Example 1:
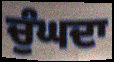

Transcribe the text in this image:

ਚੁੰਘਦਾ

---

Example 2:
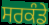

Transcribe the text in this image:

ਸਰਕੰਡੇ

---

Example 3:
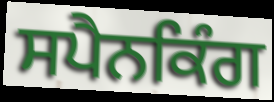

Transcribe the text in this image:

ਸਪੈਨਕਿੰਗ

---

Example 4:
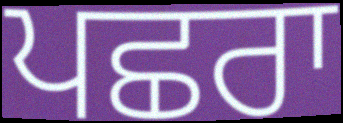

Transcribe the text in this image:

ਪਛਰਾ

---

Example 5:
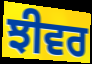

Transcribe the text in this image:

ਝੀਵਰ